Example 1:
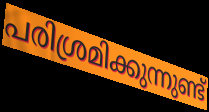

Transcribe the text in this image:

പരിശ്രമിക്കുന്നുണ്ട്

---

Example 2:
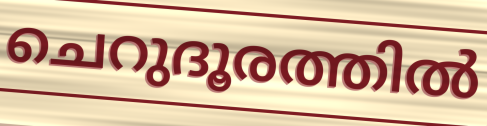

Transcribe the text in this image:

ചെറുദൂരത്തിൽ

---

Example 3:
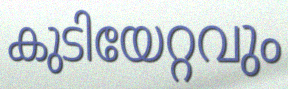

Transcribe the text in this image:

കുടിയേറ്റവും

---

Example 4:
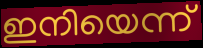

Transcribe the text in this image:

ഇനിയെന്ന്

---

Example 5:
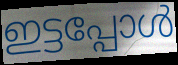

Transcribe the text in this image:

ഇട്ടപ്പോൾ